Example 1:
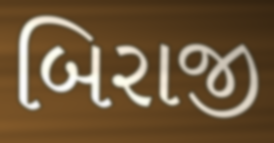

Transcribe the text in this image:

બિરાજી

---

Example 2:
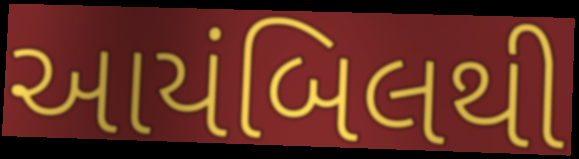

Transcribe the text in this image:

આયંબિલથી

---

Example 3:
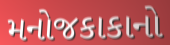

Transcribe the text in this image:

મનોજકાકાનો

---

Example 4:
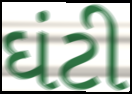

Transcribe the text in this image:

ઘંટી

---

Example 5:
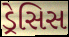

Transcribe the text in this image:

ડ્રેસિસ